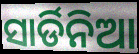
ସାର୍ଡିନିଆ